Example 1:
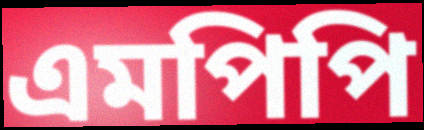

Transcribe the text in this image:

এমপিপি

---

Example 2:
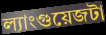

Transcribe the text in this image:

ল্যাংগুয়েজটা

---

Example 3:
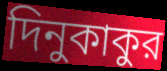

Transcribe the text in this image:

দিনুকাকুর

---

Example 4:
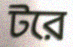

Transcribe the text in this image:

টরে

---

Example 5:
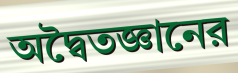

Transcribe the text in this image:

অদ্বৈতজ্ঞানের